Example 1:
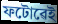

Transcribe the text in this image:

ফটোৱেই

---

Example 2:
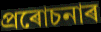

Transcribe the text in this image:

প্ৰৰোচনাৰ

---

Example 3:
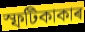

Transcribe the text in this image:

স্ফটিকাকাৰ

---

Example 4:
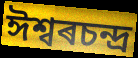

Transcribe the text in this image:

ঈশ্বৰচন্দ্ৰ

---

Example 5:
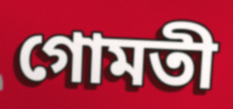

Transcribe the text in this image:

গোমতী